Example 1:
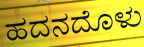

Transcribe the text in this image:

ಹದನದೊಳು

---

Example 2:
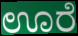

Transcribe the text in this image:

ಊರೆ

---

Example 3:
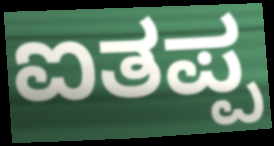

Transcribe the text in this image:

ಐತಪ್ಪ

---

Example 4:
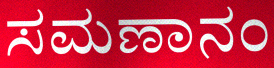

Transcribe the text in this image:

ಸಮಣಾನಂ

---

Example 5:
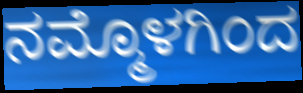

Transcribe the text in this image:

ನಮ್ಮೊಳಗಿಂದ